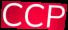
CCP